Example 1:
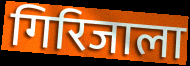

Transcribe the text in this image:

गिरिजाला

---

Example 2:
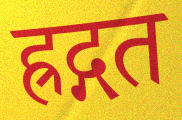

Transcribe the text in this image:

ह्रद्गत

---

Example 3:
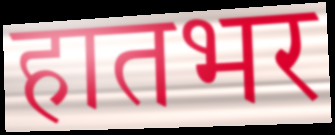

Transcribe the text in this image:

हातभर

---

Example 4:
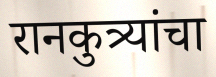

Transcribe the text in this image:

रानकुत्र्यांचा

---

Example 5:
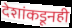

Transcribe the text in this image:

देशांकडूनही